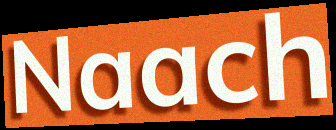
Naach